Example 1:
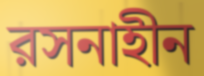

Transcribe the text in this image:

রসনাহীন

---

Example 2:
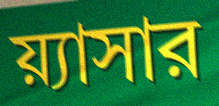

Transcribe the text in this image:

য়্যাসার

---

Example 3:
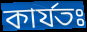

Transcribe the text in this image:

কার্যতঃ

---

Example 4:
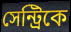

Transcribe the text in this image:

সেন্ট্রিকে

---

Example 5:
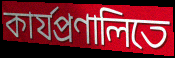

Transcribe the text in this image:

কার্যপ্রণালিতে